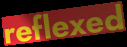
reflexed